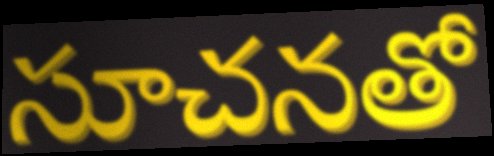
సూచనతో